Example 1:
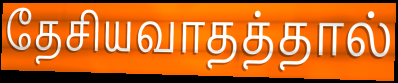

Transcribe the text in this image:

தேசியவாதத்தால்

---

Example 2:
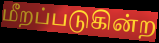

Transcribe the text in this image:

மீறப்படுகின்ற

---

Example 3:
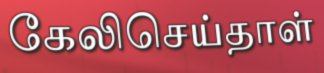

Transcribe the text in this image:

கேலிசெய்தாள்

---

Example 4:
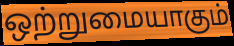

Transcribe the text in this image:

ஒற்றுமையாகும்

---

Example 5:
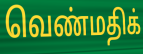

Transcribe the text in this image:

வெண்மதிக்